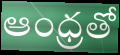
ఆంధ్రతో